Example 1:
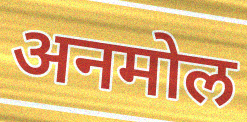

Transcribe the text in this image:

अनमोल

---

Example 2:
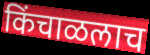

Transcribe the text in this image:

किंचाळलाच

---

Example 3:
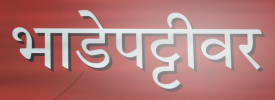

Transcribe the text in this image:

भाडेपट्टीवर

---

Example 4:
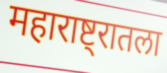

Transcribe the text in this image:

महाराष्ट्रातला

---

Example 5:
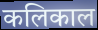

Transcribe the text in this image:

कलिकाल